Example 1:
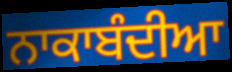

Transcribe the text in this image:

ਨਾਕਾਬੰਦੀਆ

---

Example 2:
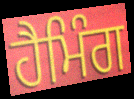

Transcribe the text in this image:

ਹੈਮਿੰਗ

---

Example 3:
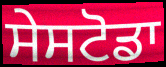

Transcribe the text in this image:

ਸੇਸਟੋਡਾ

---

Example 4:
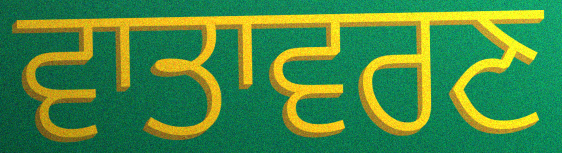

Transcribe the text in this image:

ਵਾਤਾਵਰਣ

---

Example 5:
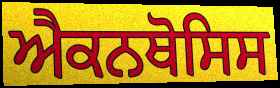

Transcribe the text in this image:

ਐਕਨਥੋਸਿਸ